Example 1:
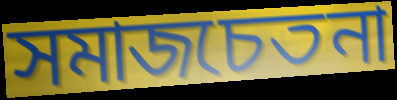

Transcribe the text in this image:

সমাজচেতনা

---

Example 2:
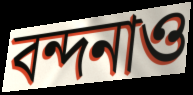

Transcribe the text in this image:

বন্দনাও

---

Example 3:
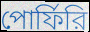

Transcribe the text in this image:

পোর্ফিরি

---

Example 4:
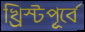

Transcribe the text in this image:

খ্রিস্টপূর্বে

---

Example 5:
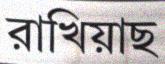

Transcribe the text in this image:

রাখিয়াছ